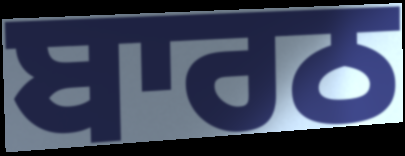
ਬਾਰਠ